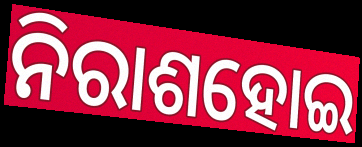
ନିରାଶହୋଇ